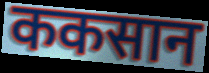
ककसान